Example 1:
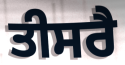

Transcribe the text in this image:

ਤੀਸਰੈ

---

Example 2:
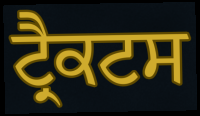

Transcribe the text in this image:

ਟ੍ਰੈਕਟਸ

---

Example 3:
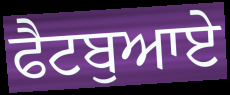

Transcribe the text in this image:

ਫੈਟਬੁਆਏ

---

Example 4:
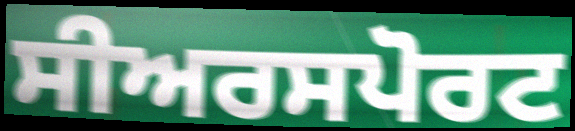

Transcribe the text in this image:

ਸੀਅਰਸਪੋਰਟ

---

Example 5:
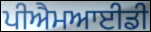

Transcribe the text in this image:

ਪੀਐਮਆਈਡੀ